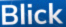
Blick